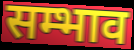
सम्भाव